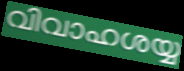
വിവാഹശയ്യ